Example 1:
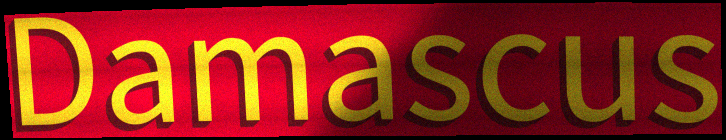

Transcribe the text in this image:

Damascus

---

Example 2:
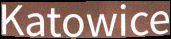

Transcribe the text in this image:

Katowice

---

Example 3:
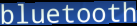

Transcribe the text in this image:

bluetooth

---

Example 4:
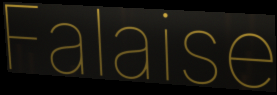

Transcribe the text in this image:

Falaise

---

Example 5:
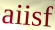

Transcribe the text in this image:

aiisf